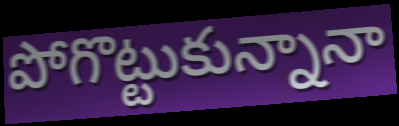
పోగొట్టుకున్నానా